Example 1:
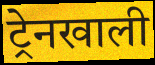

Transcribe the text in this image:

ट्रेनखाली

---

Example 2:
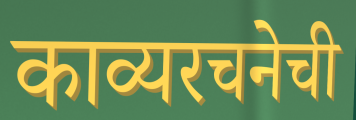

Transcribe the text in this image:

काव्यरचनेची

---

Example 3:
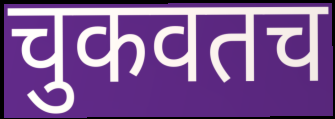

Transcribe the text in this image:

चुकवतच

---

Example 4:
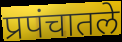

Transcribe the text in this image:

प्रपंचातले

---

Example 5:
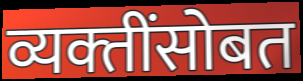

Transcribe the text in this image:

व्यक्‍तींसोबत